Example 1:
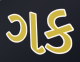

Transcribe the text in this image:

ગક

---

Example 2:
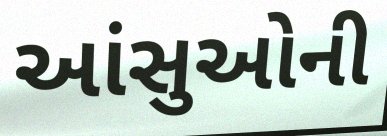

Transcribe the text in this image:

આંસુઓની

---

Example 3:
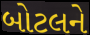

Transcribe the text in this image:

બોટલને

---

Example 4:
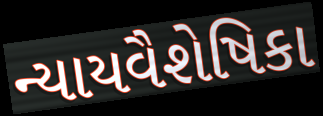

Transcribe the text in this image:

ન્યાયવૈશેષિકા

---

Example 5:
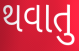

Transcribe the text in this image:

થવાતુ